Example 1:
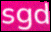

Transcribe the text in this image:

sgd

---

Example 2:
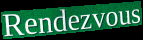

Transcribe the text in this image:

Rendezvous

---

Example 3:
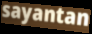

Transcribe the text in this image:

sayantan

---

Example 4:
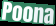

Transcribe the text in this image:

Poona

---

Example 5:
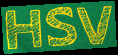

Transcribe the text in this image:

HSV